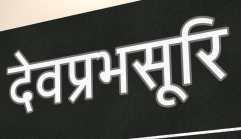
देवप्रभसूरि